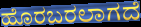
ಹೊರಬರಲಾಗದೆ